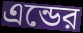
এন্ডের